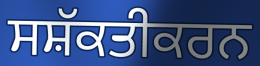
ਸਸ਼ੱਕਤੀਕਰਨ